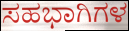
ಸಹಭಾಗಿಗಳ